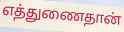
எத்துணைதான்